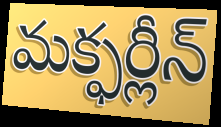
మక్ఫర్లీన్